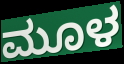
ಮೂಳ